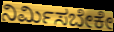
ನಿರ್ಮಿಸಬೇಕೇ